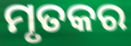
ମୃତକର